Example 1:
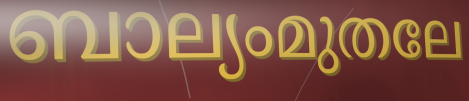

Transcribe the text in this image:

ബാല്യംമുതലേ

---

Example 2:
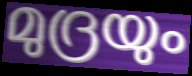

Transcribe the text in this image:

മുദ്രയും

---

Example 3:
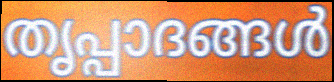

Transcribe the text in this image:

തൃപ്പാദങ്ങൾ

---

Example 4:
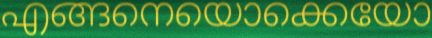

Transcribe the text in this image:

എങ്ങനെയൊക്കെയോ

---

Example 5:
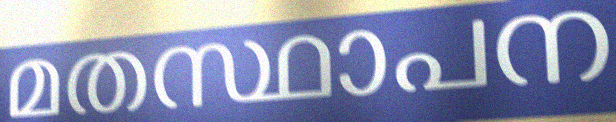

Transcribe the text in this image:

മതസ്ഥാപന